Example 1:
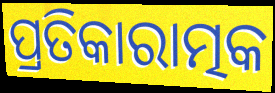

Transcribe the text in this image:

ପ୍ରତିକାରାତ୍ମକ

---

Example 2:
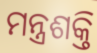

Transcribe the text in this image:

ମନ୍ତ୍ରଶକ୍ତି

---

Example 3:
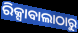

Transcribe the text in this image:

ରିକ୍ସାବାଲାଠାରୁ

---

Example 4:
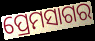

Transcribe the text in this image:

ପ୍ରେମସାଗର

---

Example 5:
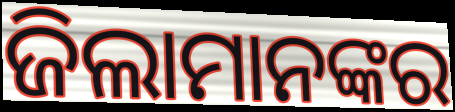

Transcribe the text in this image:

ଜିଲାମାନଙ୍କର